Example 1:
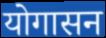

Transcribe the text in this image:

योगासन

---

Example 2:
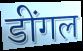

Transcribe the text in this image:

डींगल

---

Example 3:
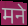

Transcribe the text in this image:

मने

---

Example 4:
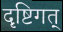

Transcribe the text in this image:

दृष्टिगत्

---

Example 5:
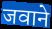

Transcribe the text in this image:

जवाने